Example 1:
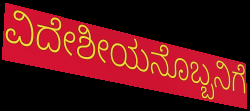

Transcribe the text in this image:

ವಿದೇಶೀಯನೊಬ್ಬನಿಗೆ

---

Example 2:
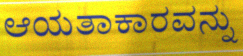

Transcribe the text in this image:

ಆಯತಾಕಾರವನ್ನು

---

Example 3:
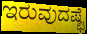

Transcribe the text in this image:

ಇರುವುದಷ್ಟೆ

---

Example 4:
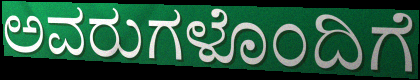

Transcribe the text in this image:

ಅವರುಗಳೊಂದಿಗೆ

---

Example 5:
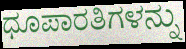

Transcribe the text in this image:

ಧೂಪಾರತಿಗಳನ್ನು